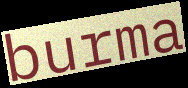
burma